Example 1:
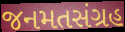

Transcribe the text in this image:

જનમતસંગ્રહ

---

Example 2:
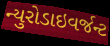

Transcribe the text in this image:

ન્યુરોડાઇવર્જન્ટ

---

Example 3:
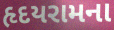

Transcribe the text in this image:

હૃદયરામના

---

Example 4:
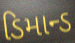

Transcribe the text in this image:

ડિમાન્ડ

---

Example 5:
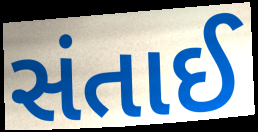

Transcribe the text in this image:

સંતાઈ